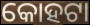
କୋହଟା